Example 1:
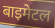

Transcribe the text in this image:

बाइमेटल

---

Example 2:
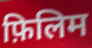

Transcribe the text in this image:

फ़िलिम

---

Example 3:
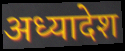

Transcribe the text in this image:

अध्यादेश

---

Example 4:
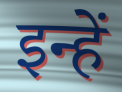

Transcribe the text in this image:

इन्हें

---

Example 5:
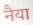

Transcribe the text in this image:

नैया